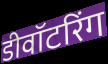
डीवॉटरिंग